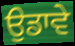
ਉਡਾਵੇ